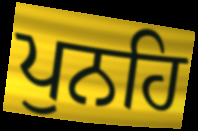
ਪੁਨਹਿ